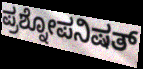
ಪ್ರಶ್ನೋಪನಿಷತ್